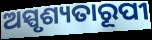
ଅସ୍ପୃଶ୍ୟତାରୂପୀ